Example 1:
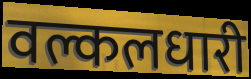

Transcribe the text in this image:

वल्कलधारी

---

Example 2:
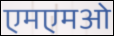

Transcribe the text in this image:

एमएमओ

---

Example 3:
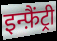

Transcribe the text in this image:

इन्फ़ैंट्री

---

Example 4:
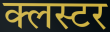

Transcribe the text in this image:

क्लस्टर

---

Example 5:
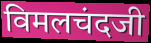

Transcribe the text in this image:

विमलचंदजी